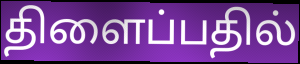
திளைப்பதில்